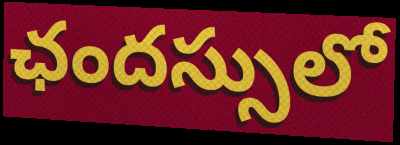
ఛందస్సులో